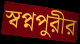
স্বপ্নপুরীর